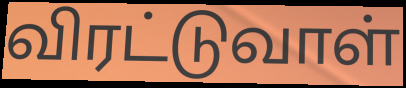
விரட்டுவாள்